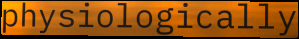
physiologically